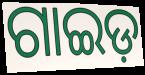
ଗାଇଡ଼